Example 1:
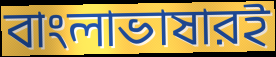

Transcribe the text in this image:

বাংলাভাষারই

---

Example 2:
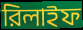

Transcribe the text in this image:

রিলাইফ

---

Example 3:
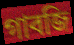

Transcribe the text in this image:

গাবজি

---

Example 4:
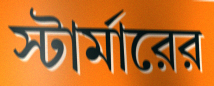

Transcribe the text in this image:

স্টার্মারের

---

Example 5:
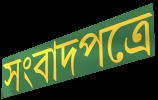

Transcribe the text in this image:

সংবাদপত্রে